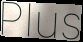
Plus